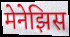
मेनेझिस